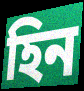
হিন